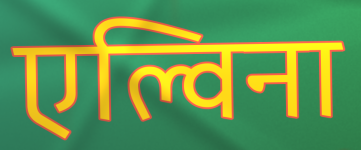
एल्विना